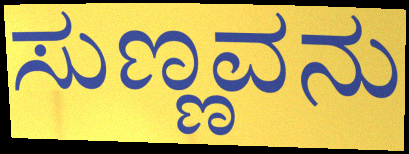
ಸುಣ್ಣವನು